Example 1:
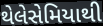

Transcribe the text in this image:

થેલેસેમિયાથી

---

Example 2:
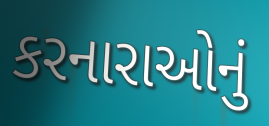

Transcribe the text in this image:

કરનારાઓનું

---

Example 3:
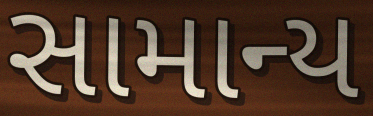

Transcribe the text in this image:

સામાન્ય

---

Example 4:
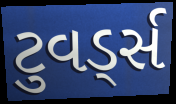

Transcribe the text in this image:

ટુવર્ડ્સ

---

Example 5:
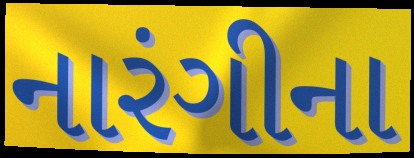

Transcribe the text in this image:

નારંગીના